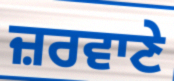
ਜ਼ਰਵਾਣੇ